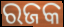
ରଜକ